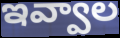
ఇవ్వాల